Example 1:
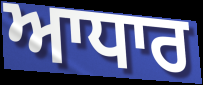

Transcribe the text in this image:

ਆਧਾਰ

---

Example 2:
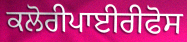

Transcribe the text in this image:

ਕਲੋਰੀਪਾਈਰੀਫੋਸ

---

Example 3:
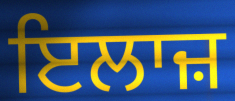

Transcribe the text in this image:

ਇਲਾਜ਼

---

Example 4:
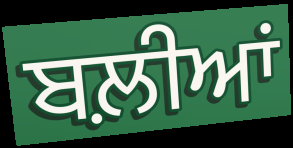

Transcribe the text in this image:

ਬਲ਼ੀਆਂ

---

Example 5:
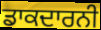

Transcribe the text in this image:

ਡਾਕਦਾਰਨੀ